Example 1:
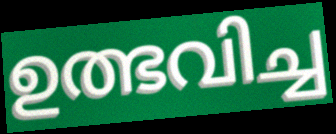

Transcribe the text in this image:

ഉത്ഭവിച്ച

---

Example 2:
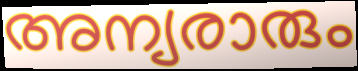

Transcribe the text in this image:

അന്യരാരും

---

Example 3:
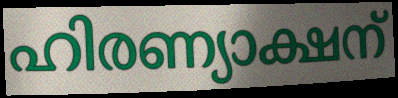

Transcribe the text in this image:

ഹിരണ്യാക്ഷന്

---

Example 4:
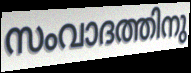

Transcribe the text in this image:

സംവാദത്തിനു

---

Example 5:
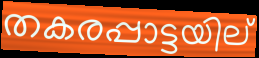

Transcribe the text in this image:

തകരപ്പാട്ടയില്